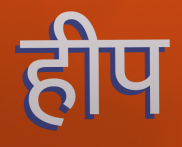
हीप